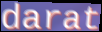
darat